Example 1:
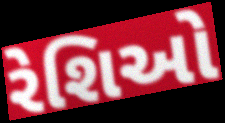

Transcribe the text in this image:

રેશિઓ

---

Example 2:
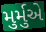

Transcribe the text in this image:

મુર્મુએ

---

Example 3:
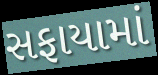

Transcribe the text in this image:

સફાયામાં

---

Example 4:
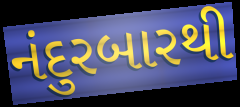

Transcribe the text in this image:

નંદુરબારથી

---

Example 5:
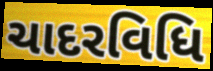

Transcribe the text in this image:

ચાદરવિધિ